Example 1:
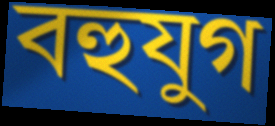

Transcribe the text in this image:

বহুযুগ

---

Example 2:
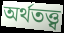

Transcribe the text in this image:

অৰ্থতত্ত্ব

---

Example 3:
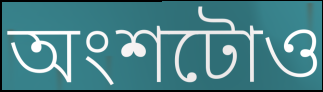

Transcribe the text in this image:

অংশটোও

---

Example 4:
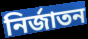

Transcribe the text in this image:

নিৰ্জাতন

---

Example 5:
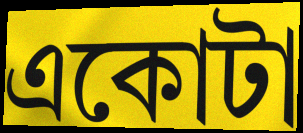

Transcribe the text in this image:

একোটা